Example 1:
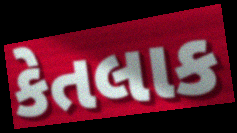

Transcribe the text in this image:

કેતલાક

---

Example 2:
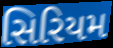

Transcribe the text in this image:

સિરિયમ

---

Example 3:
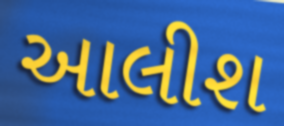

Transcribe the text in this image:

આલીશ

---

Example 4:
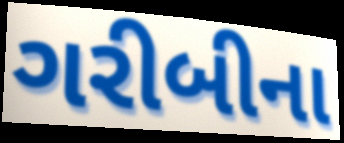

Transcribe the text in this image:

ગરીબીના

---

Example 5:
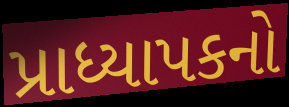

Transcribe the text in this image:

પ્રાધ્યાપકનો